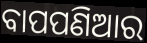
ବାପପଣିଆର